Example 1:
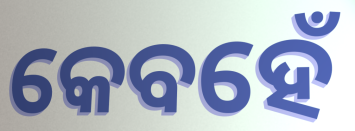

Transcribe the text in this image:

କେବହେଁ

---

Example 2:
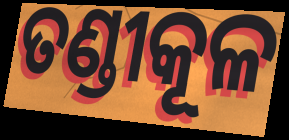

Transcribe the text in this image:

ତଣ୍ଡୀକୂଳ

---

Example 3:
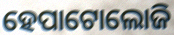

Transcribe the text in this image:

ହେପାଟୋଲୋଜି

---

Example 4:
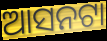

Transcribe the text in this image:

ଆସନଟା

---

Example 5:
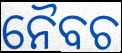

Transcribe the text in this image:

ନୈବଚ